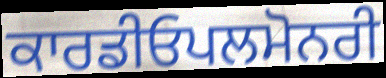
ਕਾਰਡੀਓਪਲਮੋਨਰੀ